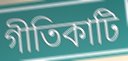
গীতিকাটি